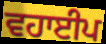
ਵਹਾਈਪ